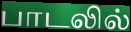
பாடலில்